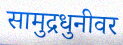
सामुद्रधुनीवर